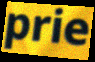
prie